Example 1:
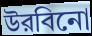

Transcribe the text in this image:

উরবিনো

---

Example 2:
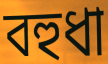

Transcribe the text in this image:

বহুধা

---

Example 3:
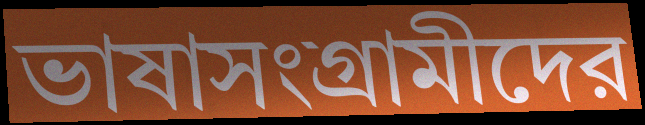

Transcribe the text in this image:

ভাষাসংগ্রামীদের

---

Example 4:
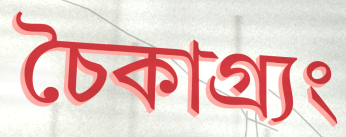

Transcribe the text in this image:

চৈকাগ্র্যং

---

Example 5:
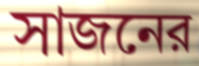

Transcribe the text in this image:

সাজনের